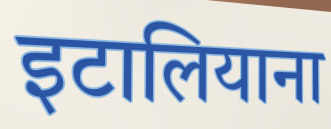
इटालियाना